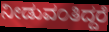
ನೀಡುವಂತಿದ್ದರೆ